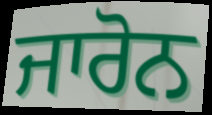
ਜਾਰੋਨ